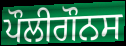
ਪੌਲੀਗੌਨਸ